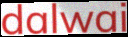
dalwai